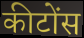
कीटोंस